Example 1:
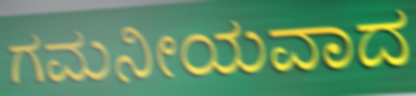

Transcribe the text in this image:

ಗಮನೀಯವಾದ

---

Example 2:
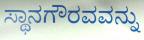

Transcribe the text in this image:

ಸ್ಥಾನಗೌರವವನ್ನು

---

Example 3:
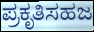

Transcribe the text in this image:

ಪ್ರಕೃತಿಸಹಜ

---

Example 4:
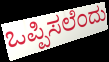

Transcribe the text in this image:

ಒಪ್ಪಿಸಲೆಂದು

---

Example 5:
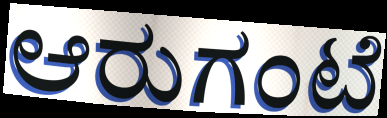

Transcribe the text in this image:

ಆರುಗಂಟೆ